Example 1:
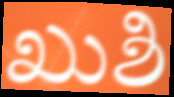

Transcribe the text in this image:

ಖುಶಿ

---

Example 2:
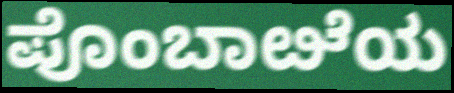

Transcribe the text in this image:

ಪೊಂಬಾೞೆಯ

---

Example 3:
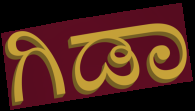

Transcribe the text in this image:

ಗಿಡಾ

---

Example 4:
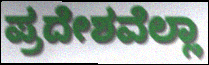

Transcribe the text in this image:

ಪ್ರದೇಶವೆಲ್ಲಾ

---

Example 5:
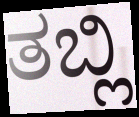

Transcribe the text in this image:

ತಬ್ಲಿ